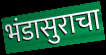
भंडासुराचा